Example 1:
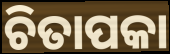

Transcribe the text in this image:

ଚିତାପକା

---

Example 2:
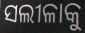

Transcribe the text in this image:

ସଲୀଳାକୁ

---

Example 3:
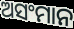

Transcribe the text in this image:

ଅସଂମାନ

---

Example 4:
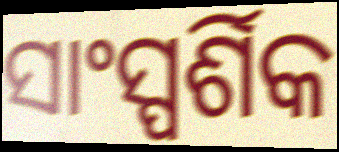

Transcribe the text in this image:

ସାଂସ୍ପର୍ଶିକ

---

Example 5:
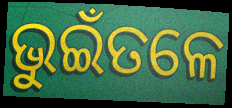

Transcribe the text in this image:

ଭୁଇଁତଳେ